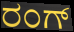
ರಂಗ್